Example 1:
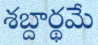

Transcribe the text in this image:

శబ్దార్థమే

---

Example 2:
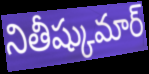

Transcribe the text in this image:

నితీష్కుమార్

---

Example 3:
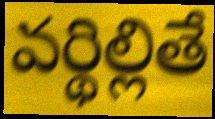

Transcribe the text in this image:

వర్థిల్లితే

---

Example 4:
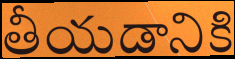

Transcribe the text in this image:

తీయడానికి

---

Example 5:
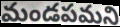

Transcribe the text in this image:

మండపమని